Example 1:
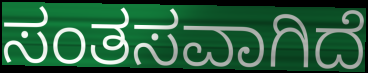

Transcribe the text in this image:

ಸಂತಸವಾಗಿದೆ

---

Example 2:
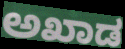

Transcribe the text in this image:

ಅಖಾಡ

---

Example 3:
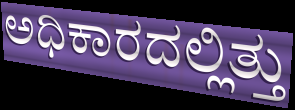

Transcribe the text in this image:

ಅಧಿಕಾರದಲ್ಲಿತ್ತು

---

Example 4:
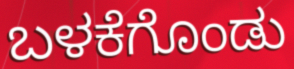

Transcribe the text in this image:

ಬಳಕೆಗೊಂಡು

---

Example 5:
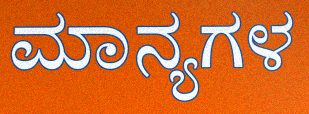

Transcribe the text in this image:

ಮಾನ್ಯಗಳ